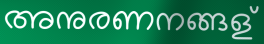
അനുരണനങ്ങള്